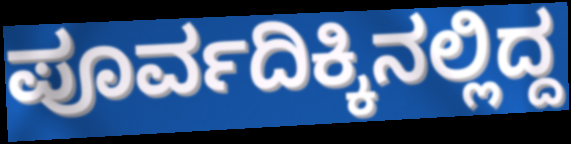
ಪೂರ್ವದಿಕ್ಕಿನಲ್ಲಿದ್ದ